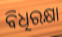
ବିଧିରକ୍ଷା